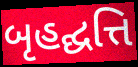
બૃહદ્ઘત્તિ